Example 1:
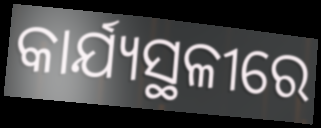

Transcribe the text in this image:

କାର୍ଯ୍ୟସ୍ଥଳୀରେ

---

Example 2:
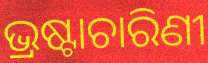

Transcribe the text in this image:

ଭ୍ରଷ୍ଟାଚାରିଣୀ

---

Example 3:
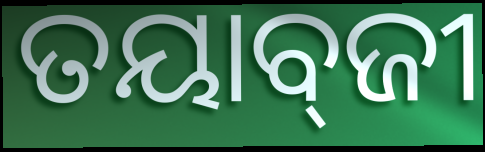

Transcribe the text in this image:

ତୟାବ୍‌ଜୀ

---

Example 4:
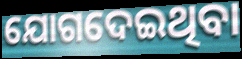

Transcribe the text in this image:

ଯୋଗଦେଇଥିବା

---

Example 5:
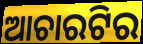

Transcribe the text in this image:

ଆଚାରଟିର